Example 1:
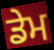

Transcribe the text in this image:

ਡੇਮ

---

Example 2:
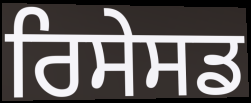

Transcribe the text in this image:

ਰਿਸੇਸਡ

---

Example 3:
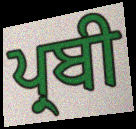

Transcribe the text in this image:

ਪ੍ਰਬੀ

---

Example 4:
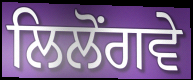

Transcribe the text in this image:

ਲਿਲੋਂਗਵੇ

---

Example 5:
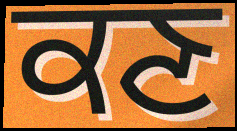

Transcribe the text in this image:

ਕਣ